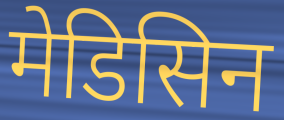
मेडिसिन